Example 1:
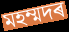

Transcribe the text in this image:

মহম্মদৰ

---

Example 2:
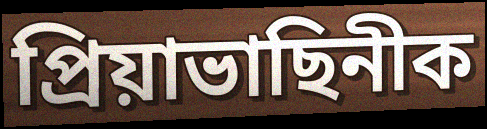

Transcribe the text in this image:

প্ৰিয়াভাছিনীক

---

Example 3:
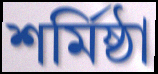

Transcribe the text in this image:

শৰ্মিষ্ঠা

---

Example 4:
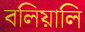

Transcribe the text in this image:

বলিয়ালি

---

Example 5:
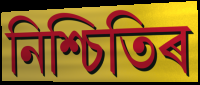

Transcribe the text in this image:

নিশ্চিতিৰ